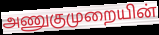
அணுகுமுறையின்